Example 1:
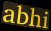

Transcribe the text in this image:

abhi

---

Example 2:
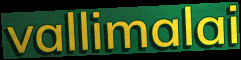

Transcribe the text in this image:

vallimalai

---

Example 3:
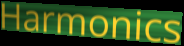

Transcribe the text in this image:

Harmonics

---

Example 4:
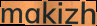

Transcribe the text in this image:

makizh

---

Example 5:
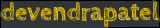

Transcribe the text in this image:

devendrapatel